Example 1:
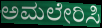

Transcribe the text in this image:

ಅಮಲೇರಿಸಿ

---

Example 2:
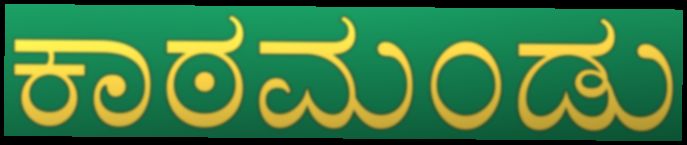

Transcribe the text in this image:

ಕಾಠಮಂಡು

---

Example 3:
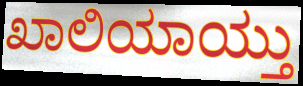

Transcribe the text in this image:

ಖಾಲಿಯಾಯ್ತು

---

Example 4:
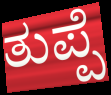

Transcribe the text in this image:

ತುಪ್ಪೆ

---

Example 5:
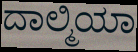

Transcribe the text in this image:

ದಾಲ್ಮಿಯಾ